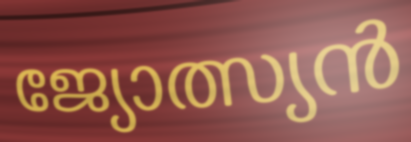
ജ്യോത്സ്യൻ